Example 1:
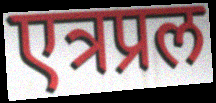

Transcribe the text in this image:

एत्रप्रल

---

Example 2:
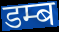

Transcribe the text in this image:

डम्ब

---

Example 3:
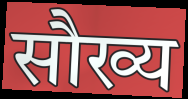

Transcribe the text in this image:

सौख्य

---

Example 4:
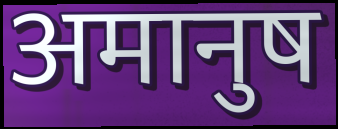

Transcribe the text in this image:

अमानुष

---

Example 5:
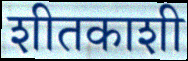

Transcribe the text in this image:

शीतकाशी